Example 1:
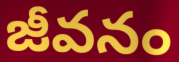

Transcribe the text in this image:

జీవనం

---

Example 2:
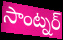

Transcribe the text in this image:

సాంట్నర్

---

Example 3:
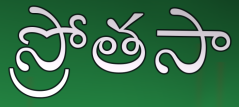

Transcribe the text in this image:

స్రోతసా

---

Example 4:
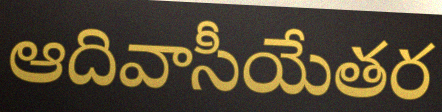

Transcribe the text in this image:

ఆదివాసీయేతర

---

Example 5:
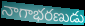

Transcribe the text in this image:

నాగాభరణుడు